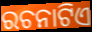
ରଚନାଟିଏ